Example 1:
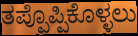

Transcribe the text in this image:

ತಪ್ಪೊಪ್ಪಿಕೊಳ್ಳಲು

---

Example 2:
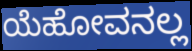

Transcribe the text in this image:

ಯೆಹೋವನಲ್ಲ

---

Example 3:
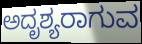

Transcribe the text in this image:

ಅದೃಶ್ಯರಾಗುವ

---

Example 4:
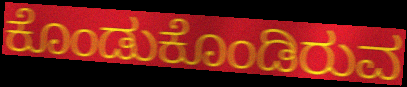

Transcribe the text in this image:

ಕೊಂಡುಕೊಂಡಿರುವ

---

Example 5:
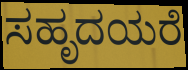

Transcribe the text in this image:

ಸಹೃದಯರೆ